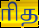
ரித